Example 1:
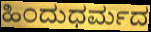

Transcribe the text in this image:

ಹಿಂದುಧರ್ಮದ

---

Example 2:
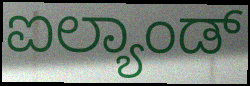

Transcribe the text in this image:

ಐಲ್ಯಾಂಡ್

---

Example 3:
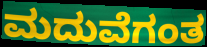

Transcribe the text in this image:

ಮದುವೆಗಂತ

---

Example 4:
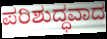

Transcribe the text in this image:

ಪರಿಶುದ್ಧವಾದ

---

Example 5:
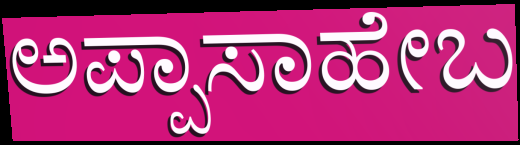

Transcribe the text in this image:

ಅಪ್ಪಾಸಾಹೇಬ